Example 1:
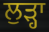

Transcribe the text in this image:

ਲੁੜ੍ਹਾ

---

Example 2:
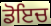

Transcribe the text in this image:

ਡੋਇਚ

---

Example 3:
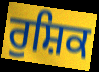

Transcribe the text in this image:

ਰੁਸ਼ਿਕ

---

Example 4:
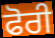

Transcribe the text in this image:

ਫੋਰੀ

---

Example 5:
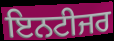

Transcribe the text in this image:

ਇਨਟੀਜਰ